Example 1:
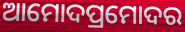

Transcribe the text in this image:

ଆମୋଦପ୍ରମୋଦର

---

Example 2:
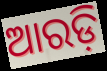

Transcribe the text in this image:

ଆରଡ଼ି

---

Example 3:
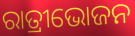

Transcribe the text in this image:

ରାତ୍ରୀଭୋଜନ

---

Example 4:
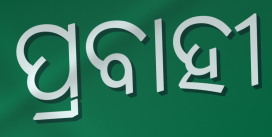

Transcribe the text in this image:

ପ୍ରବାହୀ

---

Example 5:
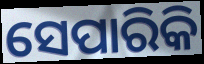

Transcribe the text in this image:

ସେପାରିକି